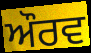
ਔਰਵ